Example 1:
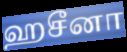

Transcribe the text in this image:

ஹசீனா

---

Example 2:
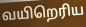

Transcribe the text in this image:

வயிறெரிய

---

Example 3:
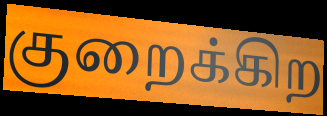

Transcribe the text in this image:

குறைக்கிற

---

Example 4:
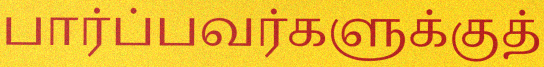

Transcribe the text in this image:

பார்ப்பவர்களுக்குத்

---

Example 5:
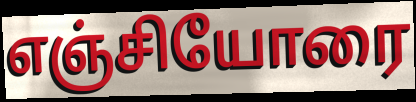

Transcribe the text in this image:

எஞ்சியோரை